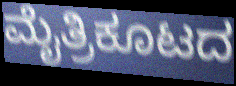
ಮೈತ್ರಿಕೂಟದ